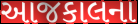
આજકાલના